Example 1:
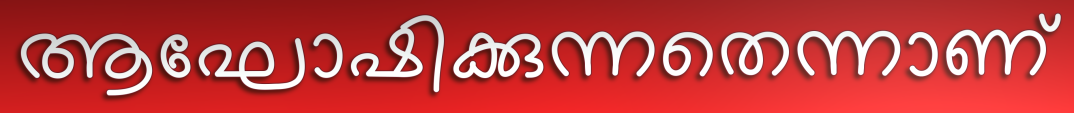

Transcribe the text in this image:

ആഘോഷിക്കുന്നതെന്നാണ്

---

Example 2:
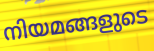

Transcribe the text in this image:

നിയമങ്ങളുടെ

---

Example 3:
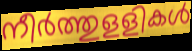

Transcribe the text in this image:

നീർത്തുളളികൾ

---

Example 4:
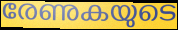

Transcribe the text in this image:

രേണുകയുടെ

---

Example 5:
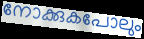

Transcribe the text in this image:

നോക്കുകപോലും